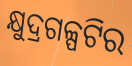
କ୍ଷୁଦ୍ରଗଳ୍ପଟିର